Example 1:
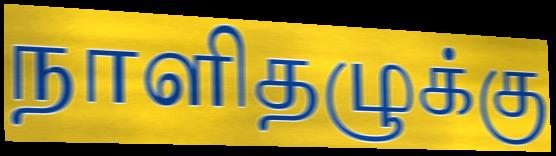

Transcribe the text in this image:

நாளிதழுக்கு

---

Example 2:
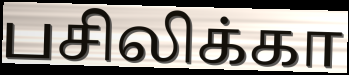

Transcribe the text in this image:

பசிலிக்கா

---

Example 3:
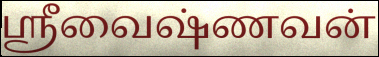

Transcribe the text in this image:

ஸ்ரீவைஷ்ணவன்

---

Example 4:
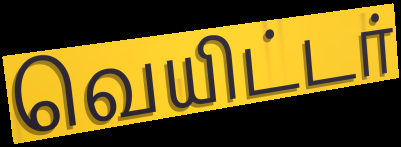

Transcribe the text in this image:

வெயிட்டர்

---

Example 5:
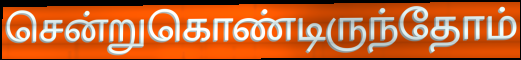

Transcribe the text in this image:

சென்றுகொண்டிருந்தோம்